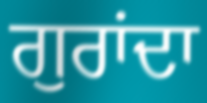
ਗੁਰਾਂਦਾ